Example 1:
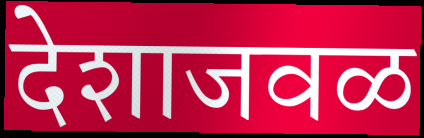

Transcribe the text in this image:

देशाजवळ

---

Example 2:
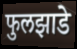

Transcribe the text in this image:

फुलझाडे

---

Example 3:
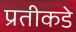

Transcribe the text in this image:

प्रतीकडे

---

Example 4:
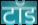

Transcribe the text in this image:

टॉड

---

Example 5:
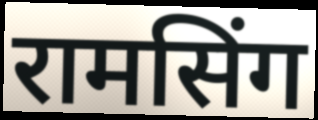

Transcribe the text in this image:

रामसिंग